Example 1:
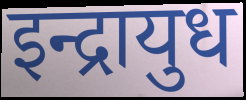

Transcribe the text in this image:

इन्द्रायुध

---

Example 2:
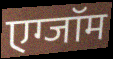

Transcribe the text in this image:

एग्जॉम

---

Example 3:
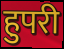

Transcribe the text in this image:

हुपरी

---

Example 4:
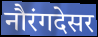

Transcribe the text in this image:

नौरंगदेसर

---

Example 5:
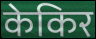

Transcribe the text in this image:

केकिर